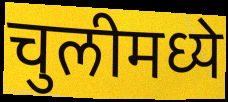
चुलीमध्ये